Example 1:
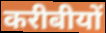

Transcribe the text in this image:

करीबीयों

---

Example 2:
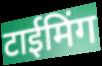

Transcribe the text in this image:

टाईमिंग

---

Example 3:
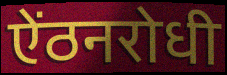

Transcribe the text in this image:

ऐंठनरोधी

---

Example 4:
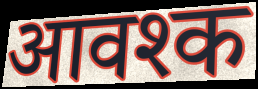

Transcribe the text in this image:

आवश्क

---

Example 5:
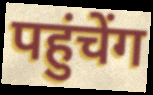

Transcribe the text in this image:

पहुंचेंग